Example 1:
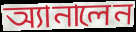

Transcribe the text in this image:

অ্যানালেন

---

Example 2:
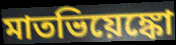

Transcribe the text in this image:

মাতভিয়েঙ্কো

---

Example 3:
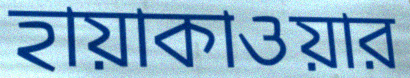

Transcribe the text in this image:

হায়াকাওয়ার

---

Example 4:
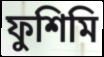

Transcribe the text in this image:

ফুশিমি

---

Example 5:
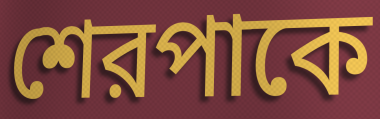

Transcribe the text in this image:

শেরপাকে